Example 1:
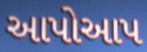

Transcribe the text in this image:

આપોઆપ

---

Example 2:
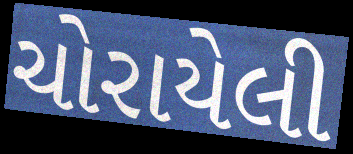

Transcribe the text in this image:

ચોરાયેલી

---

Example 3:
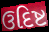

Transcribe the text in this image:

ઉદિષ્ટ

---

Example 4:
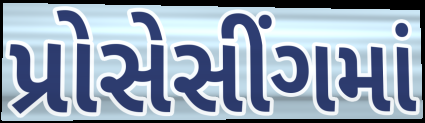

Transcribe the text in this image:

પ્રોસેસીંગમાં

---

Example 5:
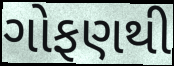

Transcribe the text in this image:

ગોફણથી